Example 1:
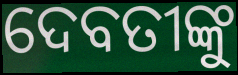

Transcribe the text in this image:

ଦେବତୀଙ୍କୁ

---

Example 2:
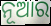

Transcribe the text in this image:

ନୂଆର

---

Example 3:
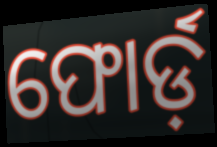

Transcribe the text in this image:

ଫୋର୍ଡ଼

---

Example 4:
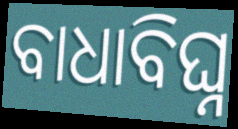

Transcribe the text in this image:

ବାଧାବିଘ୍ନ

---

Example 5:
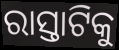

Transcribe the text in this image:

ରାସ୍ତାଟିକୁ